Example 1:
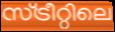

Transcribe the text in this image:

സ്ട്രീറ്റിലെ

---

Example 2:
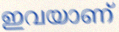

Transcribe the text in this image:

ഇവയാണ്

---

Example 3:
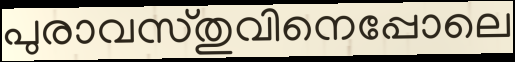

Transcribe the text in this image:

പുരാവസ്തുവിനെപ്പോലെ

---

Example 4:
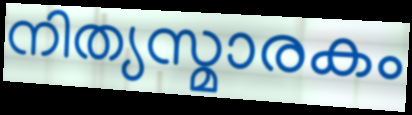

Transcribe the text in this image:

നിത്യസ്മാരകം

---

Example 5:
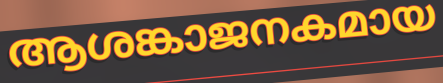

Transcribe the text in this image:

ആശങ്കാജനകമായ